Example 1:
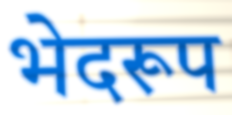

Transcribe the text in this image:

भेदरूप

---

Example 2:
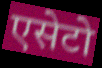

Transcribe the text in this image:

एसेटो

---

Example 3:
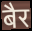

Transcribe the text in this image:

बैर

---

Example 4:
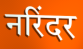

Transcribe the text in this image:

नरिंदर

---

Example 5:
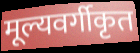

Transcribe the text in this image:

मूल्यवर्गीकृत